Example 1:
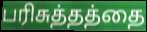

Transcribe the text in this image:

பரிசுத்தத்தை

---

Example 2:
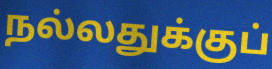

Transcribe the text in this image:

நல்லதுக்குப்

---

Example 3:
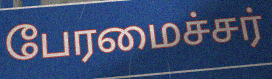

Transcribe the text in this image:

பேரமைச்சர்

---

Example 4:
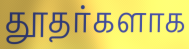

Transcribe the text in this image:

தூதர்களாக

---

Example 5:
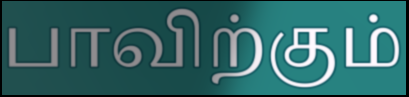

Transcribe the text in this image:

பாவிற்கும்